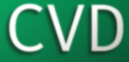
CVD